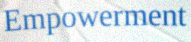
Empowerment